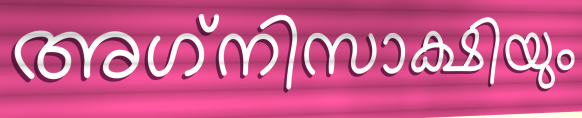
അഗ്‌നിസാക്ഷിയും